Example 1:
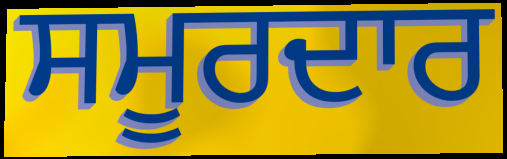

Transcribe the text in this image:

ਸਮੂਰਦਾਰ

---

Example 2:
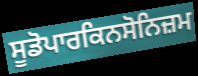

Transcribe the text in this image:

ਸੂਡੋਪਾਰਕਿਨਸੋਨਿਜ਼ਮ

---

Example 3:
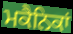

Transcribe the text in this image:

ਮਕੈਨਿਕਾਂ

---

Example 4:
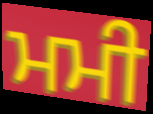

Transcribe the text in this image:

ਮਮੀ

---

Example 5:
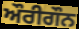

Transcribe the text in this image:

ਔਰੀਗੌਨ